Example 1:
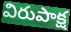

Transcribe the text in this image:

విరుపాక్ష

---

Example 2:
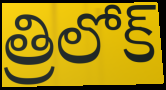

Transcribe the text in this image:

త్రిలోక్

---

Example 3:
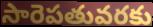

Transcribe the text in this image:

సారెపతువరకు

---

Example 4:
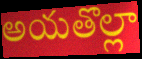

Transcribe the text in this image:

అయతొల్లా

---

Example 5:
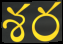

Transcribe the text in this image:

శర